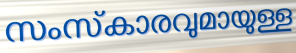
സംസ്‌കാരവുമായുള്ള